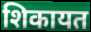
शिकायत